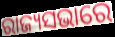
ରାଜ୍ୟସଭାରେ